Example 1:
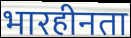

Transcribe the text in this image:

भारहीनता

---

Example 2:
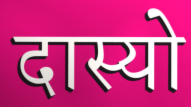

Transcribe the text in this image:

दास्यो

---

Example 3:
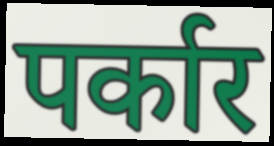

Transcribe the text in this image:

पर्कार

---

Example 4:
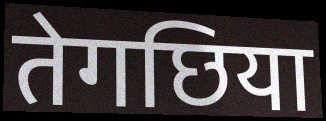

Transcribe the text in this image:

तेगछिया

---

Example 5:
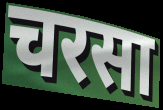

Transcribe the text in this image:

चरसा